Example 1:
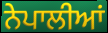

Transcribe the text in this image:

ਨੇਪਾਲੀਆਂ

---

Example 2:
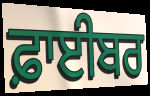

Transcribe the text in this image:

ਫ਼ਾਈਬਰ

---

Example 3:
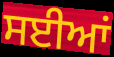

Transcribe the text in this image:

ਸਈਆਂ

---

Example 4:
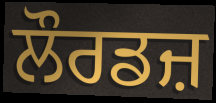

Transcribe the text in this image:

ਲੌਰਡਜ਼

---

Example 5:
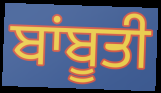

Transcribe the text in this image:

ਬਾਂਬੂਤੀ